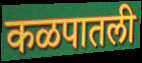
कळपातली